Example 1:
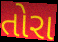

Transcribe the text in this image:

તોરા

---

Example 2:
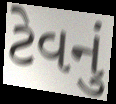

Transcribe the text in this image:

ટેવનું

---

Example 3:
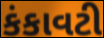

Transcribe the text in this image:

કંકાવટી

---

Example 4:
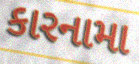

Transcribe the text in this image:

કારનામા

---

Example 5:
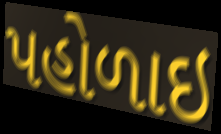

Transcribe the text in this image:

પહોળાઇ